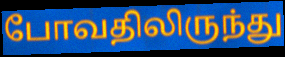
போவதிலிருந்து